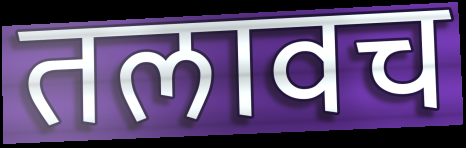
तलावच